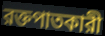
রক্তপাতকারী